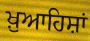
ਖ਼ੁਆਹਿਸ਼ਾਂ